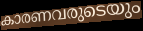
കാരണവരുടെയും